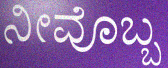
ನೀವೊಬ್ಬ